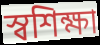
স্বশিক্ষা